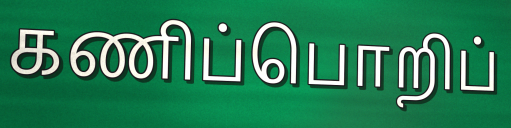
கணிப்பொறிப்